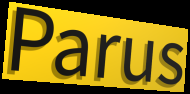
Parus